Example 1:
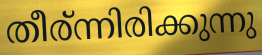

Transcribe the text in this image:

തീര്ന്നിരിക്കുന്നു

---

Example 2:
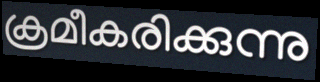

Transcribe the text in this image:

ക്രമീകരിക്കുന്നു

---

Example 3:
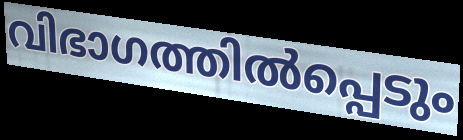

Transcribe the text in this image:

വിഭാഗത്തിൽപ്പെടും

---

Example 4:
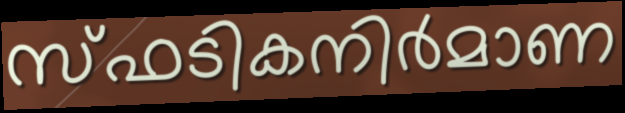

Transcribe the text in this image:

സ്ഫടികനിർമാണ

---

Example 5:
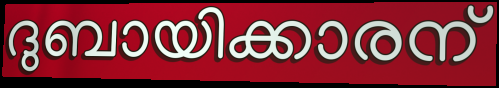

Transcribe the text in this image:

ദുബായിക്കാരന്